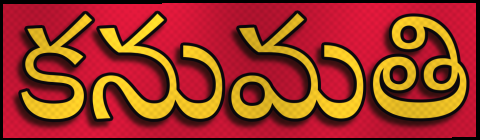
కనుమతి